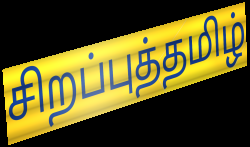
சிறப்புத்தமிழ்